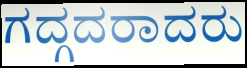
ಗದ್ಗದರಾದರು